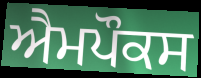
ਐਮਪੌਕਸ